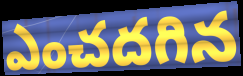
ఎంచదగిన